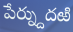
పేర్న్దుదఱి